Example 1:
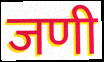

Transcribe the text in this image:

जणी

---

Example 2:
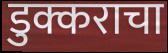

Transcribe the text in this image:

डुक्कराचा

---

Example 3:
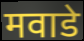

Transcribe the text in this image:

मवाडे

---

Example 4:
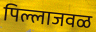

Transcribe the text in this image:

पिल्लाजवळ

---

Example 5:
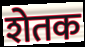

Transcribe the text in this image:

शेतक